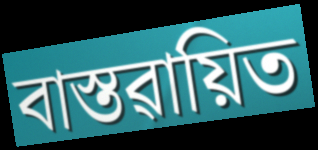
বাস্তৱায়িত